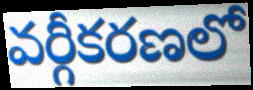
వర్గీకరణలో